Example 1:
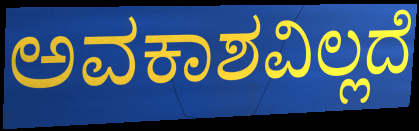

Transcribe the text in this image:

ಅವಕಾಶವಿಲ್ಲದೆ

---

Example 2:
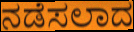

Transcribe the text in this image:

ನಡೆಸಲಾದ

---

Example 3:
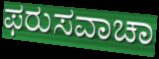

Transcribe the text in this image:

ಫರುಸವಾಚಾ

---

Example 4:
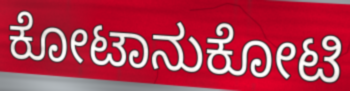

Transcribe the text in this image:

ಕೋಟಾನುಕೋಟಿ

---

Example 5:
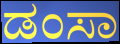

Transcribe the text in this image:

ಡಂಸಾ